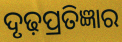
ଦୃଢ଼ପ୍ରତିଜ୍ଞାର